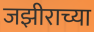
जझीराच्या